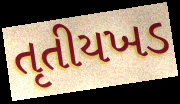
તૃતીયખડ